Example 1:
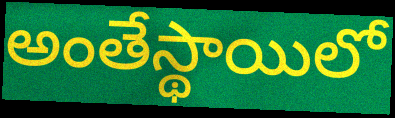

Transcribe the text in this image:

అంతేస్థాయిలో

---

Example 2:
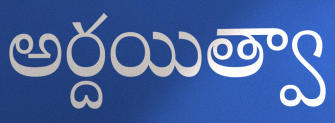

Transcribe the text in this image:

అర్దయిత్వా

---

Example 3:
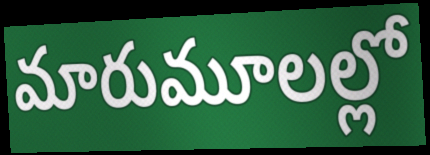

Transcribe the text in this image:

మారుమూలల్లో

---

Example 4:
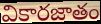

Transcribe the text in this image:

వికారజాతం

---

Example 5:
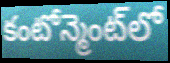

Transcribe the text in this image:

కంటోన్మెంట్‌లో